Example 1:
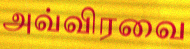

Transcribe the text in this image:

அவ்விரவை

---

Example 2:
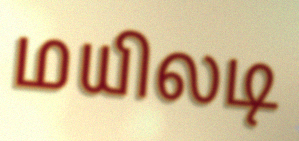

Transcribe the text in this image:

மயிலடி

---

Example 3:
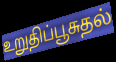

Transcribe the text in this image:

உறுதிப்பூசுதல்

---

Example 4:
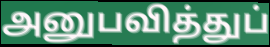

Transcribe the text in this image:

அனுபவித்துப்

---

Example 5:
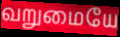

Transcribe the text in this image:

வறுமையே